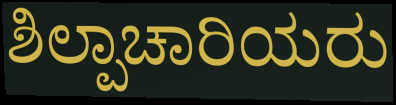
ಶಿಲ್ಪಾಚಾರಿಯರು